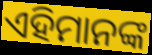
ଏହିମାନଙ୍କ